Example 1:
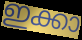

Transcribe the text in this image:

ഇക്കാ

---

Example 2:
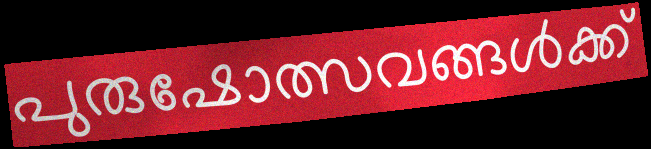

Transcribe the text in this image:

പുരുഷോത്സവങ്ങൾക്ക്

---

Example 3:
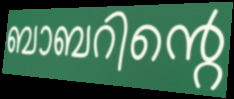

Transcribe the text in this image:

ബാബറിന്റെ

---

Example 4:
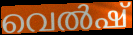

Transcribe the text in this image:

വെൽഷ്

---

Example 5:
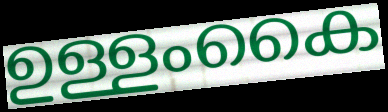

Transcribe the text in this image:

ഉള്ളംകൈ